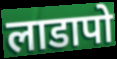
लाडापो